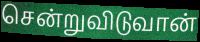
சென்றுவிடுவான்